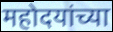
महोदयांच्या